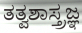
ತತ್ವಶಾಸ್ತ್ರಜ್ಞ